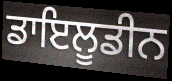
ਡਾਇਲੂਡੀਨ